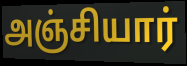
அஞ்சியார்